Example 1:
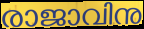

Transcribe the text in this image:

രാജാവിനു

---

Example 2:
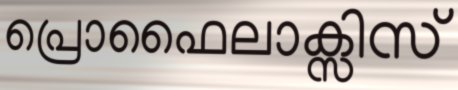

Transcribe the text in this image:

പ്രൊഫൈലാക്സിസ്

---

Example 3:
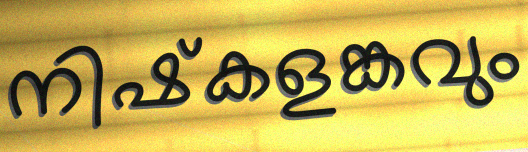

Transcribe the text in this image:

നിഷ്‌കളങ്കവും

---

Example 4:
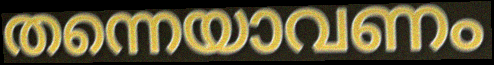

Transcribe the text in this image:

തന്നെയാവണം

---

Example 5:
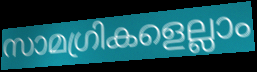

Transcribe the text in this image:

സാമഗ്രികളെല്ലാം